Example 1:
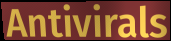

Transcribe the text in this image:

Antivirals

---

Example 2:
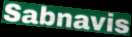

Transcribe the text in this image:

Sabnavis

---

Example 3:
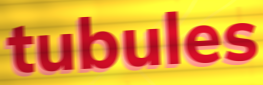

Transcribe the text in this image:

tubules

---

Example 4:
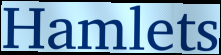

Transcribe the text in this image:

Hamlets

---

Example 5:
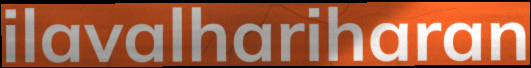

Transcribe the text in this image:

ilavalhariharan